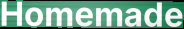
Homemade